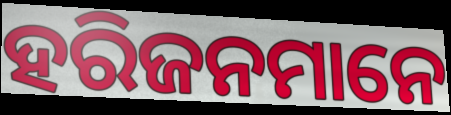
ହରିଜନମାନେ